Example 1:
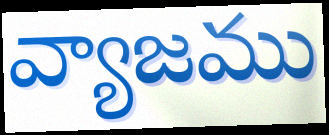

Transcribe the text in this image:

వ్యాజము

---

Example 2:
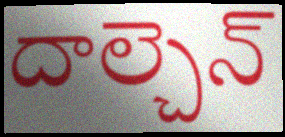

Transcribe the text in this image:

దాల్చెన్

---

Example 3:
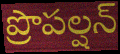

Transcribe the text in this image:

ప్రొపల్షన్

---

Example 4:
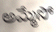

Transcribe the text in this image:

అమ్మేసో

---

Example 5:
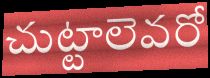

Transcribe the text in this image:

చుట్టాలెవరో